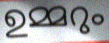
ഉമ്മറും